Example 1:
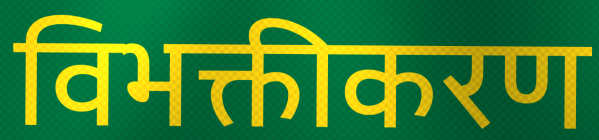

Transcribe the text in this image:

विभक्तीकरण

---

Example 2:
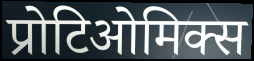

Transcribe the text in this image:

प्रोटिओमिक्स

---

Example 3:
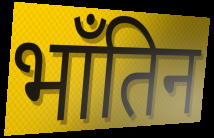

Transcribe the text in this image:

भाँतिन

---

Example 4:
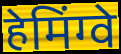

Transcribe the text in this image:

हेमिंग्वे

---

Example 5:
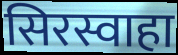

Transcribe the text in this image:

सिरस्वाहा